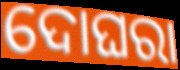
ଦୋଘରା